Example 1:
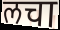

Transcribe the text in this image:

लचा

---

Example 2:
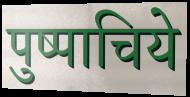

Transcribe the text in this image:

पुष्पाचिये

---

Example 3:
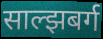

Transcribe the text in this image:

साल्झबर्ग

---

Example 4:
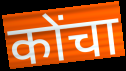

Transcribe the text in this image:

कोंचा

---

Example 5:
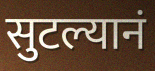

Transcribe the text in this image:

सुटल्यानं